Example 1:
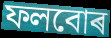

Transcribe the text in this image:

ফলবোৰ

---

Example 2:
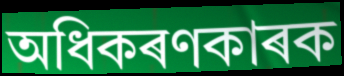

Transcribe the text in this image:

অধিকৰণকাৰক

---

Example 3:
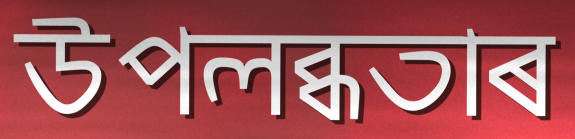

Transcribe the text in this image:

উপলব্ধতাৰ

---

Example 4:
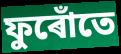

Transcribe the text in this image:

ফুৰোঁতে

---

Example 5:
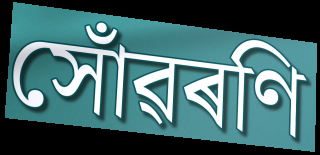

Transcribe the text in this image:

সোঁৱৰণি